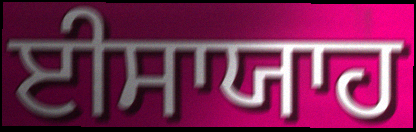
ਈਸਾਯਾਹ